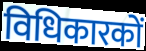
विधिकारकों